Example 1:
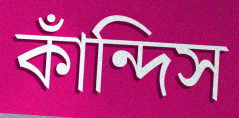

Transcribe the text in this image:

কাঁন্দিস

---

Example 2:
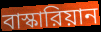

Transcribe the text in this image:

বাস্কারিয়ান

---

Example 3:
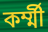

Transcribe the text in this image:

কর্ম্মী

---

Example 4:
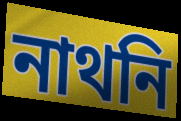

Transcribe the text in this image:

নাথনি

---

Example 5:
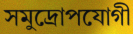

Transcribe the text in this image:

সমুদ্রোপযোগী